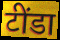
टींडा